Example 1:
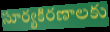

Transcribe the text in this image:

సూర్యకిరణాలకు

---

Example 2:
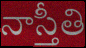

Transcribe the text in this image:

నాస్తీతి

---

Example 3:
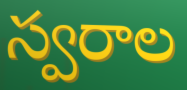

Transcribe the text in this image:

స్వరాల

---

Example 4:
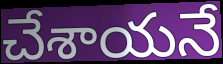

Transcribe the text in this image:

చేశాయనే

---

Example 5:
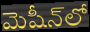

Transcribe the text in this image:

మెషీన్‌లో